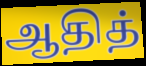
ஆதித்